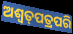
ଅଶ୍ଵତ୍‌ପତ୍ରପରି